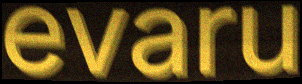
evaru